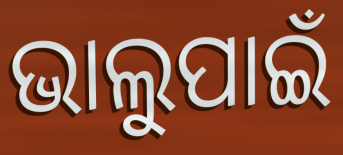
ଭାଲୁପାଇଁ